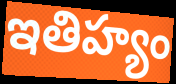
ఇతిహ్యం